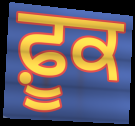
ਫ਼ੂਕ